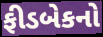
ફીડબેકનો